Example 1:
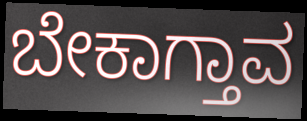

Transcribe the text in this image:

ಬೇಕಾಗ್ತಾವ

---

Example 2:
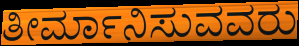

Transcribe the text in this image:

ತೀರ್ಮಾನಿಸುವವರು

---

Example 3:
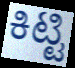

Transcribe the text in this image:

ಕಿಟ್ಟಿ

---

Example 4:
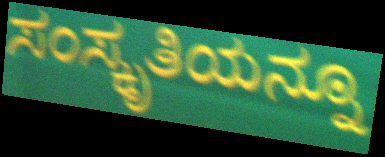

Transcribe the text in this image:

ಸಂಸ್ಕೃತಿಯನ್ನೂ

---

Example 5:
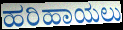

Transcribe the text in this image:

ಹರಿಹಾಯಲು